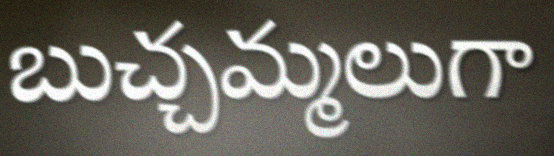
బుచ్చమ్మలుగా